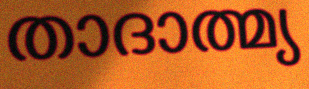
താദാത്മ്യ